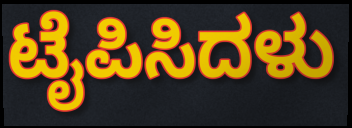
ಟೈಪಿಸಿದಳು